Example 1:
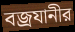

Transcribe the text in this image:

বজ্রযানীর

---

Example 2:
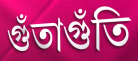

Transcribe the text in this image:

গুঁতাগুঁতি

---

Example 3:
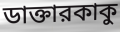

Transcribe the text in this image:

ডাক্তারকাকু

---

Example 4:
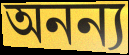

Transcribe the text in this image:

অনন্য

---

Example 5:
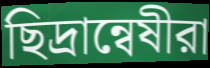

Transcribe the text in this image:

ছিদ্রান্বেষীরা